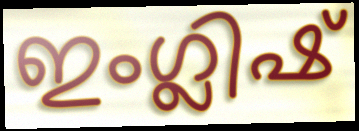
ഇംഗ്ലിഷ്